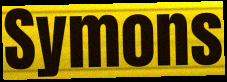
Symons